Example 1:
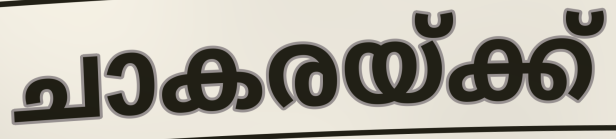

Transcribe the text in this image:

ചാകരയ്ക്ക്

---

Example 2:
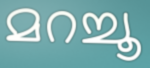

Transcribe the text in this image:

മറച്ചൂ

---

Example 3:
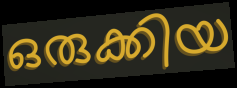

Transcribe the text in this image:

ഒരുക്കിയ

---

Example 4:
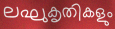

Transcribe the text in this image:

ലഘുകൃതികളും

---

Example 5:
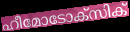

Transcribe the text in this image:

ഹീമോടോക്സിക്